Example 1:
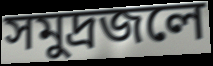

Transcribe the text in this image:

সমুদ্রজলে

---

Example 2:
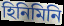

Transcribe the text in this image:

হিনিমিনি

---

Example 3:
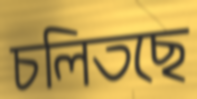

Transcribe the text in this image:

চলিতছে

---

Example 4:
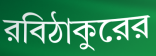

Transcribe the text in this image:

রবিঠাকুরের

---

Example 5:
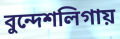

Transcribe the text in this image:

বুন্দেশলিগায়